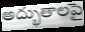
అద్భుతాలపై